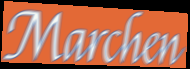
Marchen